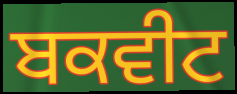
ਬਕਵੀਟ